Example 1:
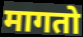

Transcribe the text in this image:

मागतो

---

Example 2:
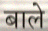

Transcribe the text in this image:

बाले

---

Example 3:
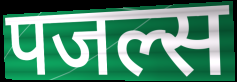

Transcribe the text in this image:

पजल्स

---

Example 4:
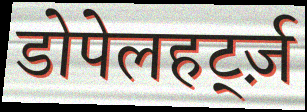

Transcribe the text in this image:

डोपेलहर्ट्ज़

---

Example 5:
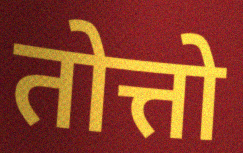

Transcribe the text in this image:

तोत्तो